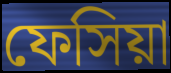
ফেসিয়া